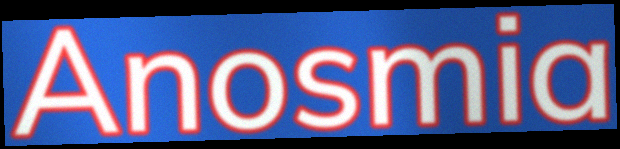
Anosmia